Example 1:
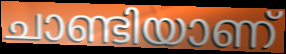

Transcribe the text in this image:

ചാണ്ടിയാണ്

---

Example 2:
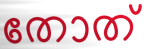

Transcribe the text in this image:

തോത്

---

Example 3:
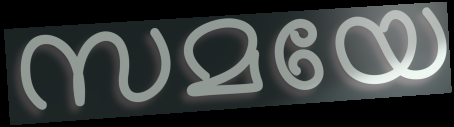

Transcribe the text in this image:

സമയേ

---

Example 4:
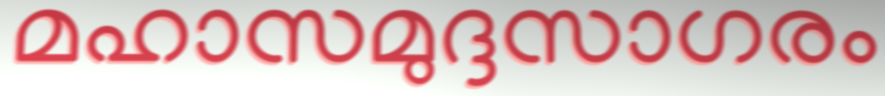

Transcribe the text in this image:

മഹാസമുദ്ദസാഗരം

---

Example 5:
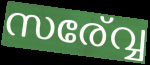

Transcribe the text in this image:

സര്വ്വേ